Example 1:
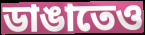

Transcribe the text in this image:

ডাঙাতেও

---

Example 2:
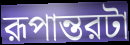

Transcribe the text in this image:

রূপান্তরটা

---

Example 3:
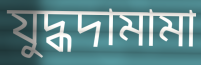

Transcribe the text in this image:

যুদ্ধদামামা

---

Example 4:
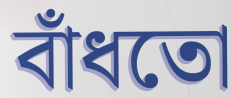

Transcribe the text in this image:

বাঁধতো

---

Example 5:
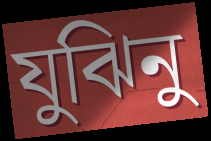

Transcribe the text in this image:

যুঝিনু